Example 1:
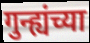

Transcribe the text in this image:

गुन्ह्यंच्या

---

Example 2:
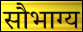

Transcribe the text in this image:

सौभाग्य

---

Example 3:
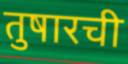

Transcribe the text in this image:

तुषारची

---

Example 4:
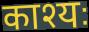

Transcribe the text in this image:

काश्यः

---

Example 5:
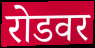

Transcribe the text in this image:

रोडवर